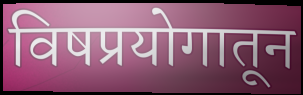
विषप्रयोगातून